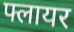
फ्लायर